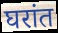
घरांत